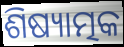
ଶିଷ୍ୟାତ୍ମକ